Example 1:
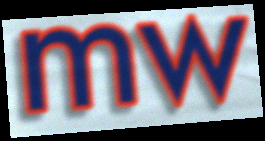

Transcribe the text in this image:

mw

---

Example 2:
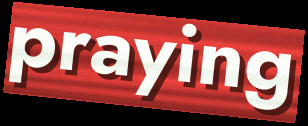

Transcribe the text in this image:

praying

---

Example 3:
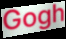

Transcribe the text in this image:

Gogh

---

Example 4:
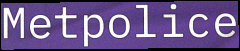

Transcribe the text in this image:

Metpolice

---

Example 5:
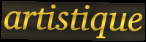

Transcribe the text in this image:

artistique